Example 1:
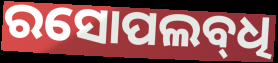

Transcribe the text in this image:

ରସୋପଲବ୍‌ଧି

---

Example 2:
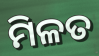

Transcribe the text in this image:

ମିଳତ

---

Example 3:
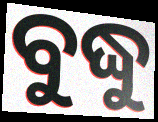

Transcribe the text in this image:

ବୁଦ୍ଧୁ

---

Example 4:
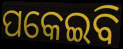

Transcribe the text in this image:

ପକେଇବି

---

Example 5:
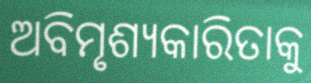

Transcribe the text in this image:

ଅବିମୃଶ୍ୟକାରିତାକୁ